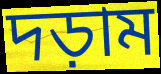
দড়াম